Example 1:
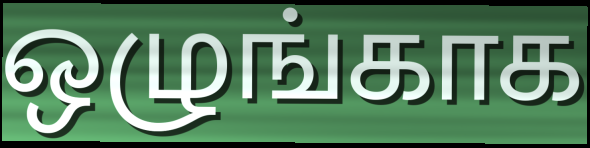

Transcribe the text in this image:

ஒழுங்காக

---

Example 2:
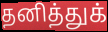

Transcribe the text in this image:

தனித்துக்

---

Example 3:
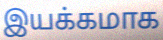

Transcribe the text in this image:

இயக்கமாக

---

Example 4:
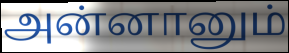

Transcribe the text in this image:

அன்னானும்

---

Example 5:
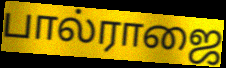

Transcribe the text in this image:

பால்ராஜை